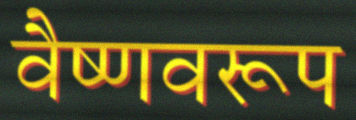
वैष्णवरूप